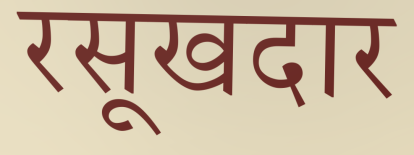
रसूखदार